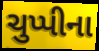
ચુપ્પીના